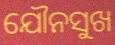
ଯୌନସୁଖ